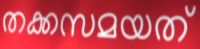
തക്കസമയത്